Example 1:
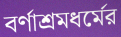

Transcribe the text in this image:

বর্ণাশ্রমধর্মের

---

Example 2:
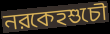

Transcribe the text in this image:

নরকেহশুচৌ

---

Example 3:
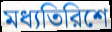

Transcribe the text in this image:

মধ্যতিরিশে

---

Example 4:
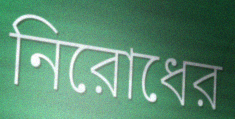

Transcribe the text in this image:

নিরোধের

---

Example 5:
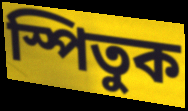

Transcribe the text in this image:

স্পিতুক